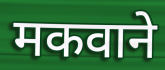
मकवाने